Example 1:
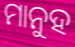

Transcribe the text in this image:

ମାନୁହ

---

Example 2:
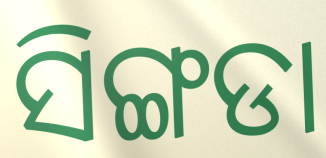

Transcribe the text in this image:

ସିଙ୍ଗଡା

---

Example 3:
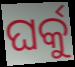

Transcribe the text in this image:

ଘର୍କୁ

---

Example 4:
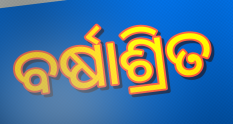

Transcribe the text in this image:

ବର୍ଷାଶ୍ରିତ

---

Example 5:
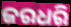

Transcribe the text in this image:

ଜରଧରି